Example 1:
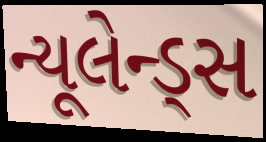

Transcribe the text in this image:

ન્યૂલેન્ડ્સ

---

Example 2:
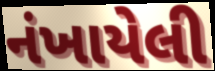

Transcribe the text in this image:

નંખાયેલી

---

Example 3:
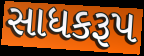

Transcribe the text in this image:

સાધકરૂપ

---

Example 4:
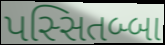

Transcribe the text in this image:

પસ્સિતબ્બા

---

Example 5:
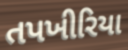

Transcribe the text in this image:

તપખીરિયા